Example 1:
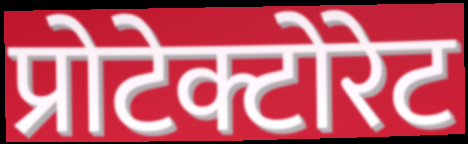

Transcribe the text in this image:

प्रोटेक्टोरेट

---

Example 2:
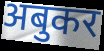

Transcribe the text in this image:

अबुकर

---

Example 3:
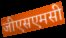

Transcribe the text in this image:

जीएसएमसी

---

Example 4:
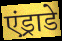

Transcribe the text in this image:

एंड्राडे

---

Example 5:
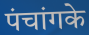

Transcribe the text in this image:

पंचांगके